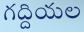
గద్దియల